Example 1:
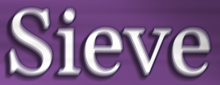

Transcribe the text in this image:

Sieve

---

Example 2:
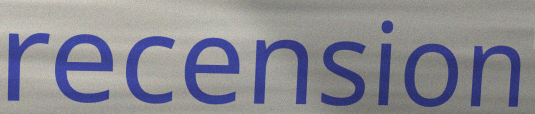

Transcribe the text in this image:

recension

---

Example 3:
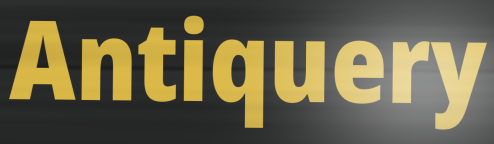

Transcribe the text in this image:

Antiquery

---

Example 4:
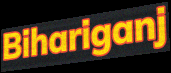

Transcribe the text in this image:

Bihariganj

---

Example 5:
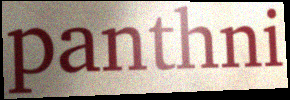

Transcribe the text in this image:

panthni